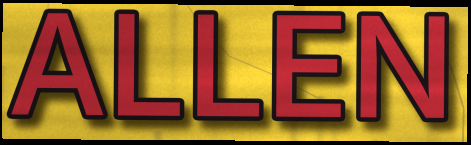
ALLEN